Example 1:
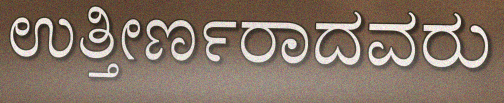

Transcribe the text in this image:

ಉತ್ತೀರ್ಣರಾದವರು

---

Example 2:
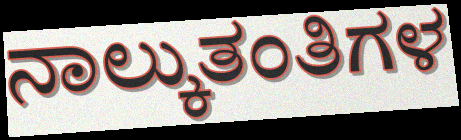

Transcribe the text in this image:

ನಾಲ್ಕುತಂತಿಗಳ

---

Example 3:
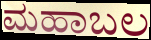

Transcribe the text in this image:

ಮಹಾಬಲ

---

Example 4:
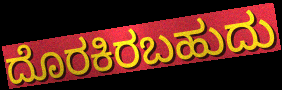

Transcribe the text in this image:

ದೊರಕಿರಬಹುದು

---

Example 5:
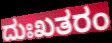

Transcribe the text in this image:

ದುಃಖತರಂ